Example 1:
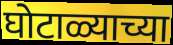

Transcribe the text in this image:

घोटाळ्याच्या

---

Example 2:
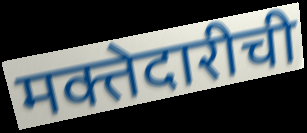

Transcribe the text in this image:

मक्तेदारीची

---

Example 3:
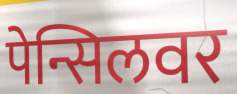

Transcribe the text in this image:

पेन्सिलवर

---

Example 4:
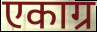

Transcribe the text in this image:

एकाग्र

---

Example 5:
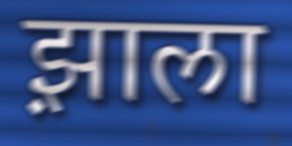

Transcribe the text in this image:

झ़ाला